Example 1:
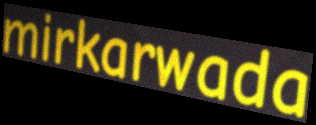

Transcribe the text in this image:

mirkarwada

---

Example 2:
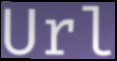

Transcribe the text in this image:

Url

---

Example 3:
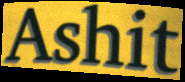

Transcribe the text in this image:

Ashit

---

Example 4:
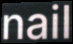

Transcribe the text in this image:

nail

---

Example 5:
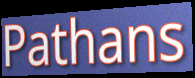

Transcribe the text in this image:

Pathans